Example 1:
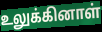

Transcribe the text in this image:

உலுக்கினாள்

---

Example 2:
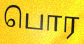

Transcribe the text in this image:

பொர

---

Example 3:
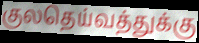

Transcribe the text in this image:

குலதெய்வத்துக்கு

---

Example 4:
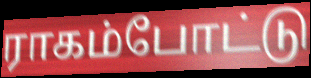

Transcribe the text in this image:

ராகம்போட்டு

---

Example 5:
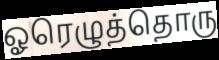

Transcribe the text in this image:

ஓரெழுத்தொரு